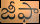
జీఫా